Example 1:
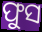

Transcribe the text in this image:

ଫୁସ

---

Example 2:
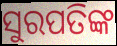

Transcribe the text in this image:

ସୁରପତିଙ୍କ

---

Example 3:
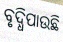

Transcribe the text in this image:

ବୃଦ୍ଧିପାଉଛି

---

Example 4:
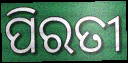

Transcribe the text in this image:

ପିରତୀ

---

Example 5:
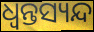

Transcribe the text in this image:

ଧ୍ଵନ୍ତସ୍ୟନ୍ଦ